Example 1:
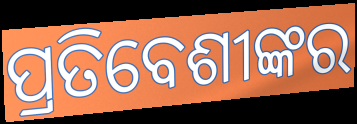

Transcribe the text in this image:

ପ୍ରତିବେଶୀଙ୍କର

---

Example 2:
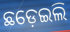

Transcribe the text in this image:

ଛଡ଼େଇଲି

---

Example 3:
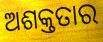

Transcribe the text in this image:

ଅଶକ୍ତତାର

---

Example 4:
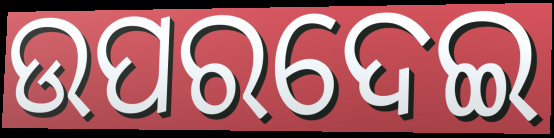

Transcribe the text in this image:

ଉପରଦେଇ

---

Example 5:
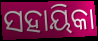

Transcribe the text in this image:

ସହାୟିକା